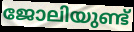
ജോലിയുണ്ട്